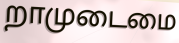
றாமுடைமை